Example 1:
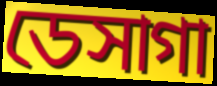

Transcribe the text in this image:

ডেসাগা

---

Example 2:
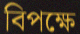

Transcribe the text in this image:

বিপক্ষে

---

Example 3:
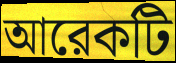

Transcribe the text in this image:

আরেকটি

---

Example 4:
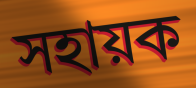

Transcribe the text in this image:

সহায়ক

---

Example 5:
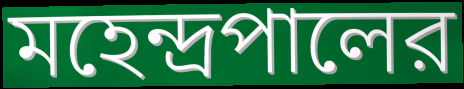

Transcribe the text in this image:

মহেন্দ্রপালের